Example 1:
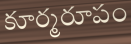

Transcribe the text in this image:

కూర్మరూపం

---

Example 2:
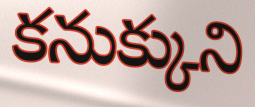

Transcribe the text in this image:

కనుక్కుని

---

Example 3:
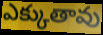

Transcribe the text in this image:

ఎక్కుతావు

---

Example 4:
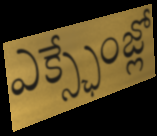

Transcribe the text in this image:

ఎక్స్ఛేంజ్లో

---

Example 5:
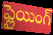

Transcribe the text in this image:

ఫ్లైయింగ్